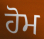
ਹੋਮ